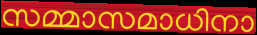
സമ്മാസമാധിനാ